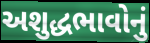
અશુદ્ધભાવોનું